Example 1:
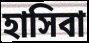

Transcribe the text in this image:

হাসিবা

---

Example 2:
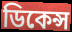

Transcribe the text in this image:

ডিকেন্স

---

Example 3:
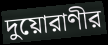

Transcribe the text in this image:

দুয়োরাণীর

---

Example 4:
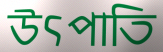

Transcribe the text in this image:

উৎপাতি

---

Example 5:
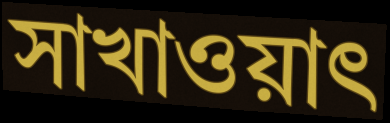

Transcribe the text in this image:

সাখাওয়াৎ